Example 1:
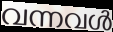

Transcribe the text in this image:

വന്നവൾ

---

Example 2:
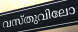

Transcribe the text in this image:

വസ്തുവിലോ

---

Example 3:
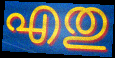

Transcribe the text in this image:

എതു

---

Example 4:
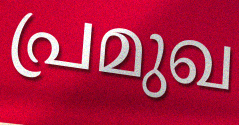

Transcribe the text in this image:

പ്രമുഖ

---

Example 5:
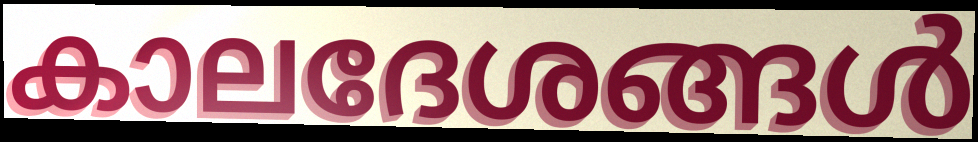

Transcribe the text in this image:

കാലദേശങ്ങൾ